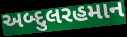
અબ્દુલરહમાન